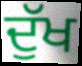
ਦੁੱਖ